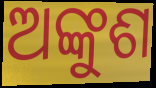
ଅଙ୍କୁଶ